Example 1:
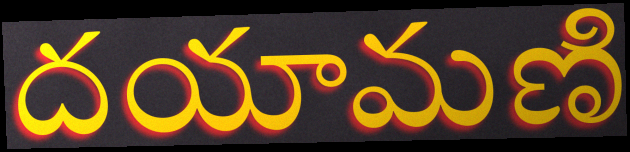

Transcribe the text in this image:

దయామణి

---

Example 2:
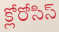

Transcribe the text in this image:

క్లోరోసిస్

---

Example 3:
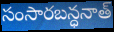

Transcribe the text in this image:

సంసారబన్ధనాత్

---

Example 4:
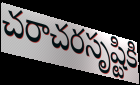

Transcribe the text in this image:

చరాచరసృష్టికి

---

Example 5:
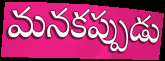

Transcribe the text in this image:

మనకప్పుడు